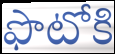
ఫొటోకి